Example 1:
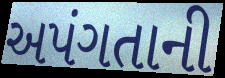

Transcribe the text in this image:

અપંગતાની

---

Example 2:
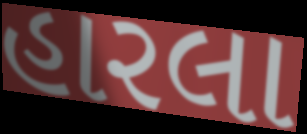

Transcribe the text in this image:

હારલા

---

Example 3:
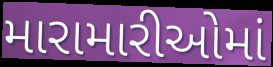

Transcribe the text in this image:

મારામારીઓમાં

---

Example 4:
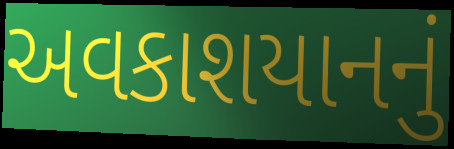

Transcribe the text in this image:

અવકાશયાનનું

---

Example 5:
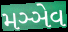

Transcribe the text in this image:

મઞ્ઞેવ